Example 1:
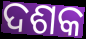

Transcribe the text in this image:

ଦଶକ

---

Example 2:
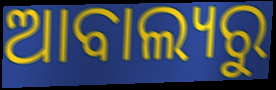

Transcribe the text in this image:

ଆବାଲ୍ୟରୁ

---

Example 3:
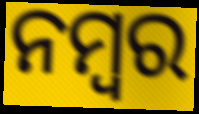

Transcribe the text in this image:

ନମ୍ବର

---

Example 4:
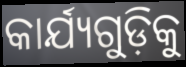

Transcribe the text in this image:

କାର୍ଯ୍ୟଗୁଡ଼ିକୁ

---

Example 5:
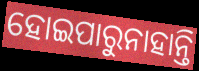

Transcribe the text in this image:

ହୋଇପାରୁନାହାନ୍ତି